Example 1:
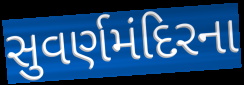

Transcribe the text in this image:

સુવર્ણમંદિરના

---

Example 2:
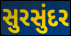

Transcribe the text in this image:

સુરસુંદર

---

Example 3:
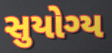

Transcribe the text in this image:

સુયોગ્ય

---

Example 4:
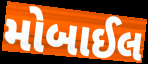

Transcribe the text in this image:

મોબાઈલ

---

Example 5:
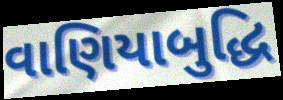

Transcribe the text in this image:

વાણિયાબુદ્ધિ